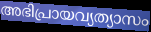
അഭിപ്രായവ്യത്യാസം